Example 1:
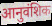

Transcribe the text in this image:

आनुवंशिक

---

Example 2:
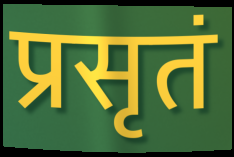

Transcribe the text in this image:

प्रसृतं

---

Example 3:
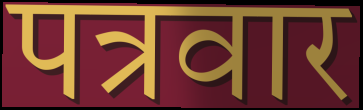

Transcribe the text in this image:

पत्रवार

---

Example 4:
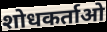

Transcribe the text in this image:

शोधकर्ताओ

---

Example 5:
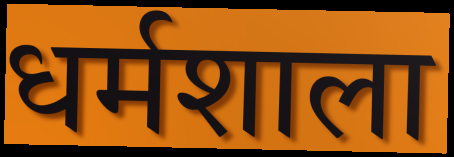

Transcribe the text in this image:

धर्मशाला